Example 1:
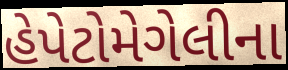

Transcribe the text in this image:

હેપેટોમેગેલીના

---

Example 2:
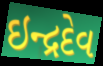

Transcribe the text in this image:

ઇન્દ્રદેવ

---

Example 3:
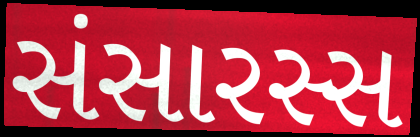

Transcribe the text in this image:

સંસારસ્સ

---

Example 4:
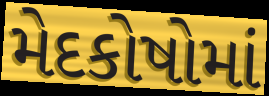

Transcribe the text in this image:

મેદકોષોમાં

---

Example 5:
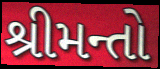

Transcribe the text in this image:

શ્રીમન્તો